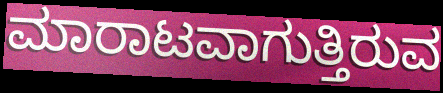
ಮಾರಾಟವಾಗುತ್ತಿರುವ